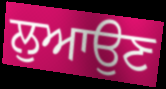
ਲੁਆਉਣ